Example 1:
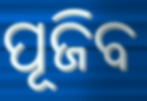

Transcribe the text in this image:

ପୂଜିବ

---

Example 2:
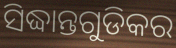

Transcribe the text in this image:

ସିଦ୍ଧାନ୍ତଗୁଡିକର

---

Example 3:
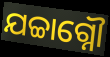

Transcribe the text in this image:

ଯଚ୍ଚାଗ୍ନୌ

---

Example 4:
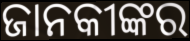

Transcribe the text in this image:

ଜାନକୀଙ୍କର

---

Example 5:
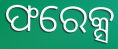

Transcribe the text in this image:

ଫରେକ୍ସ